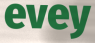
evey